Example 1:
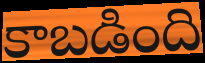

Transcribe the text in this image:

కాబడింది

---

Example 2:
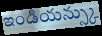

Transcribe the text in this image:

ఇండియన్స్కు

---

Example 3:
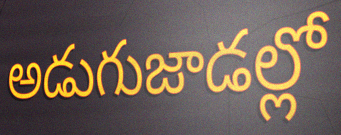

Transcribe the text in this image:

అడుగుజాడల్లో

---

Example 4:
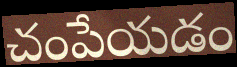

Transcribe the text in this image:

చంపేయడం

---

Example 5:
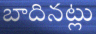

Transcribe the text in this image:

బాదినట్లు